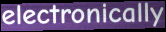
electronically